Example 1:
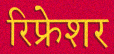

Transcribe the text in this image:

रिफ्रेशर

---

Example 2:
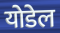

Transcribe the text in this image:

योडेल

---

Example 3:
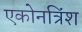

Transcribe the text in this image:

एकोनत्रिंश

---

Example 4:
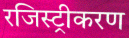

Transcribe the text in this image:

रजिस्ट्रीकरण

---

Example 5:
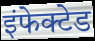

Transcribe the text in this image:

इंफेक्टेड